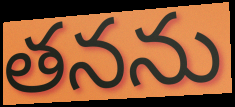
తనను